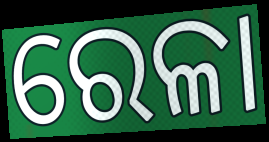
ରେଳା